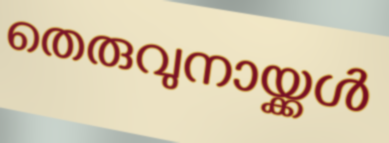
തെരുവുനായ്ക്കൾ